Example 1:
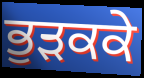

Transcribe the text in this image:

ਭੁੜਕਕੇ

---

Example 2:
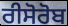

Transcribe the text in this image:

ਰੀਸੋਰੋਬ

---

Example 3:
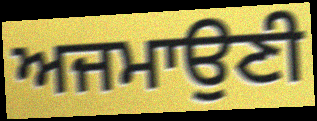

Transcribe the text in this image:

ਅਜਮਾਉਣੀ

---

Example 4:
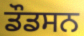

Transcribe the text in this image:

ਡੌਡਸਨ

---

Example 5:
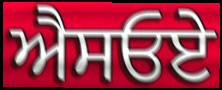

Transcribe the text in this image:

ਐਸਓਏ